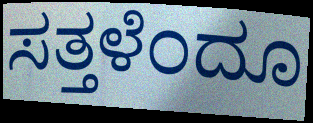
ಸತ್ತಳೆಂದೂ